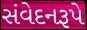
સંવેદનરૂપે